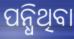
ପନ୍ଧିଥିବା